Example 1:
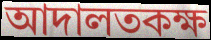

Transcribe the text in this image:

আদালতকক্ষ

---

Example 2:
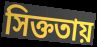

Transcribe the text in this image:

সিক্ততায়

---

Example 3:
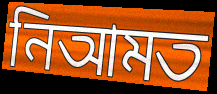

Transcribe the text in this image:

নিআমত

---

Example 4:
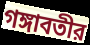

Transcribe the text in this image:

গঙ্গাবতীর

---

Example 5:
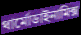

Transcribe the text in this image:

থার্মোডাইনামিক্স